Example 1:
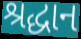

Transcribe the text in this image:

શ્રદ્ધાન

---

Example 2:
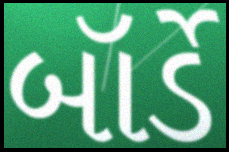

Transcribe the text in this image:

બૉર્ડે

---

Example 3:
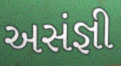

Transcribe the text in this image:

અસંજ્ઞી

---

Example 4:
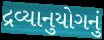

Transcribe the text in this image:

દ્રવ્યાનુયોગનું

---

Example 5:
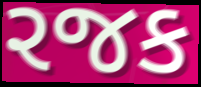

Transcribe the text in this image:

રજક